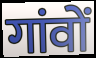
गांवों